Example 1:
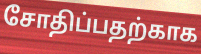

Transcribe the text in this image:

சோதிப்பதற்காக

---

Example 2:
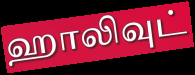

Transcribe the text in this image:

ஹாலிவுட்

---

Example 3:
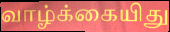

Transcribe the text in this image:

வாழ்க்கையிது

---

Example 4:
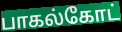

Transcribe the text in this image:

பாகல்கோட்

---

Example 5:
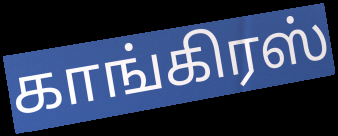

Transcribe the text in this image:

காங்கிரஸ்